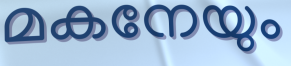
മകനേയും